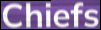
Chiefs